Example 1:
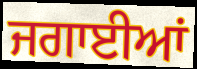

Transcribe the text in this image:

ਜਗਾਈਆਂ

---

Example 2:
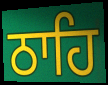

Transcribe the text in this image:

ਠਾਹਿ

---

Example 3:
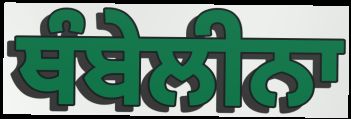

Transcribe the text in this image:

ਥੰਬੇਲੀਨਾ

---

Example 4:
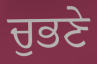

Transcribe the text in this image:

ਚੁਭਣੇ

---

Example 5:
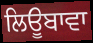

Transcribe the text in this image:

ਲਿਊਬਾਵਾ